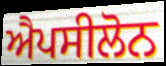
ਐਪਸੀਲੋਨ